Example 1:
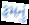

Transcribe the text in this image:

રૂમનું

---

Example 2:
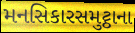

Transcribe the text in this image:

મનસિકારસમુટ્ઠાના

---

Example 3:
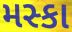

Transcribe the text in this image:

મસ્કા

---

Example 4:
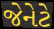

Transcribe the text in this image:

જેનેટે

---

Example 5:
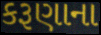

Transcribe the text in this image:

કરૂણાના